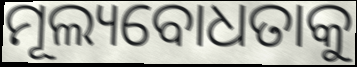
ମୂଲ୍ୟବୋଧତାକୁ